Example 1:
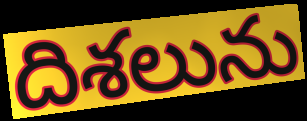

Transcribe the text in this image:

దిశలును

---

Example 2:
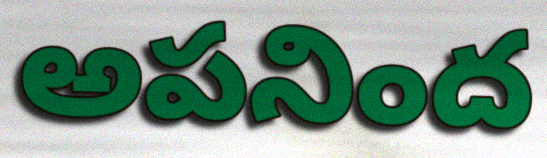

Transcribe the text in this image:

అపనింద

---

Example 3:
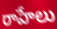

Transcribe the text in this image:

రాహేలు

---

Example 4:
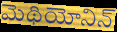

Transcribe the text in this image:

మెథియోనిన్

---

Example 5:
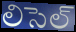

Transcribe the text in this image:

లిసెల్